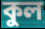
কুল